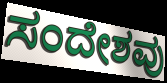
ಸಂದೇಶವು